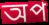
অপ